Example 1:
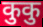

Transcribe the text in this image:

कुकु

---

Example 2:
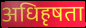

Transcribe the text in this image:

अधिहृषता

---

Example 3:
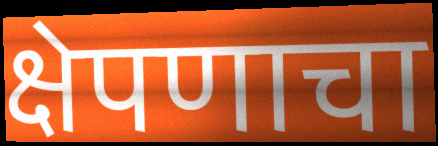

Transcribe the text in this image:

क्षेपणाचा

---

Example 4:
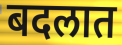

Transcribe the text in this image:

बदलात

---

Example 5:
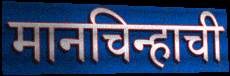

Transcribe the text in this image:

मानचिन्हाची